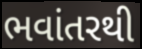
ભવાંતરથી